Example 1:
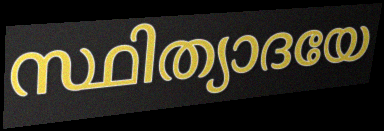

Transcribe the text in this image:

സ്ഥിത്യാദയേ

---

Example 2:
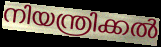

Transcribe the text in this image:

നിയന്ത്രിക്കൽ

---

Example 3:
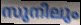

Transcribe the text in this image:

സുനിലും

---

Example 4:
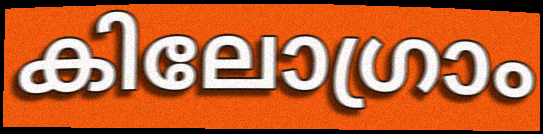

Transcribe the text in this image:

കിലോഗ്രാം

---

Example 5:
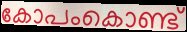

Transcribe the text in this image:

കോപംകൊണ്ട്